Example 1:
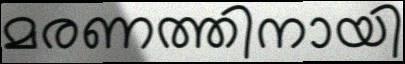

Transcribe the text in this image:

മരണത്തിനായി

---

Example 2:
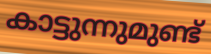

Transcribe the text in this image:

കാട്ടുന്നുമുണ്ട്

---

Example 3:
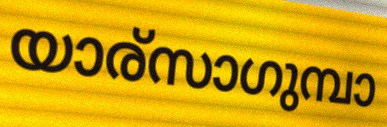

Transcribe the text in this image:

യാര്സാഗുമ്പാ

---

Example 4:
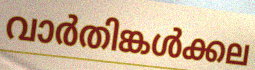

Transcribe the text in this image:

വാർതിങ്കൾക്കല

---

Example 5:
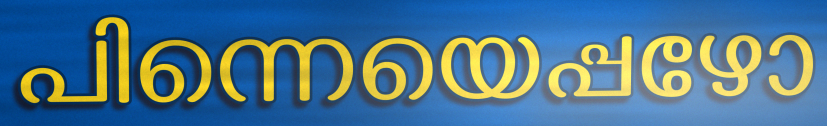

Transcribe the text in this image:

പിന്നെയെപ്പഴോ